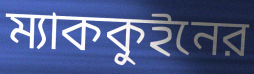
ম্যাককুইনের